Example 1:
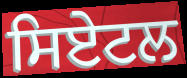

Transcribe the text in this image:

ਸਿਏਟਲ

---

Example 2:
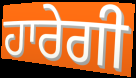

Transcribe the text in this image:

ਹਾਰੇਗੀ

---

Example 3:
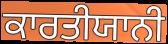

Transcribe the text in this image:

ਕਾਰਤੀਯਾਨੀ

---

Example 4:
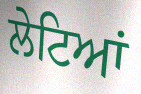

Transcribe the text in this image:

ਲੇਟਿਆਂ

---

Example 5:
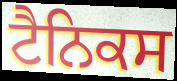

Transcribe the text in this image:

ਟੈਨਿਕਸ